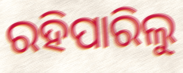
ରହିପାରିଲୁ